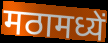
मठामध्यें